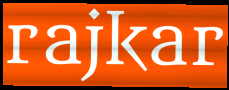
rajkar